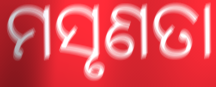
ମସୃଣତା